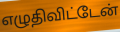
எழுதிவிட்டேன்